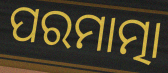
ପରମାତ୍ମା